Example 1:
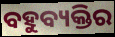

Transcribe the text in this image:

ବହୁବ୍ୟକ୍ତିର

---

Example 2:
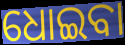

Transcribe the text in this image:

ଧୋଇବା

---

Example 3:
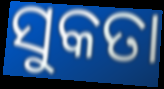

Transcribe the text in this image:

ସୁକତା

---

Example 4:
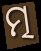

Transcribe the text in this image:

ତ୍ମ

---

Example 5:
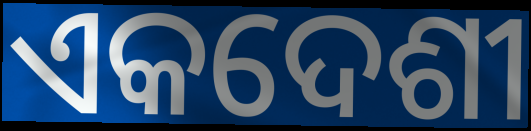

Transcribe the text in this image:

ଏକଦେଶୀ